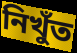
নিখুঁত